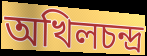
অখিলচন্দ্র